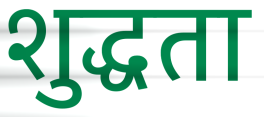
शुद्धता